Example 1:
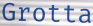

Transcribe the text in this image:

Grotta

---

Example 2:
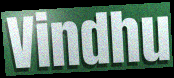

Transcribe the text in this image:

Vindhu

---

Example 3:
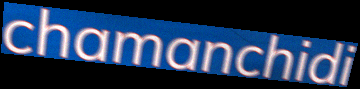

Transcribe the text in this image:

chamanchidi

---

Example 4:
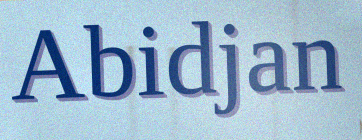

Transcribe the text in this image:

Abidjan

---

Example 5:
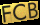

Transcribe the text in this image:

FCB